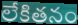
లేకితనం